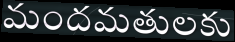
మందమతులకు